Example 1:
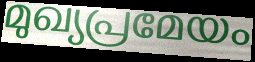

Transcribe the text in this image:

മുഖ്യപ്രമേയം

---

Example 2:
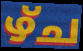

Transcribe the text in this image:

ഴ്ച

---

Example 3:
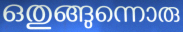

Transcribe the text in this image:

ഒതുങ്ങുന്നൊരു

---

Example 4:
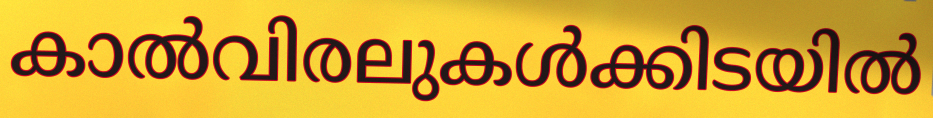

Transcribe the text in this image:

കാൽവിരലുകൾക്കിടയിൽ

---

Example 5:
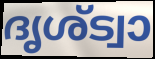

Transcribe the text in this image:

ദൃശ്ട്വാ